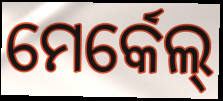
ମେର୍କେଲ୍